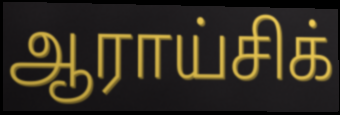
ஆராய்சிக்